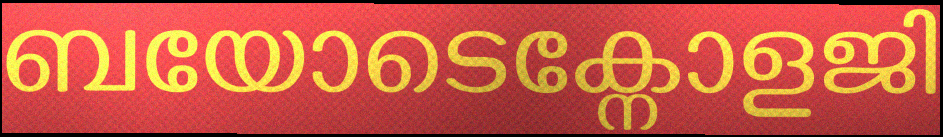
ബയോടെക്നോളജി